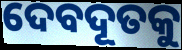
ଦେବଦୂତକୁ